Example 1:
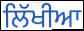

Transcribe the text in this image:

ਲਿੱਖੀਆ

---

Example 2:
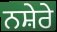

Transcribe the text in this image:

ਨਸ਼ੇਰੇ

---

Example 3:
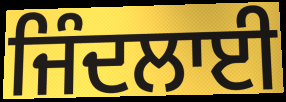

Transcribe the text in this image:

ਜਿੰਦਲਾਈ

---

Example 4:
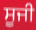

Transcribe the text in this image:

ਸੂਜੀ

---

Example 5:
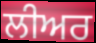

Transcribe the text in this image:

ਲੀਅਰ